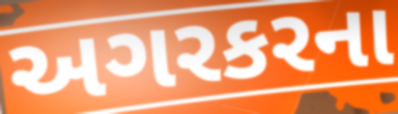
અગરકરના